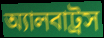
অ্যালবাট্রস